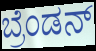
ಬ್ರೆಂಡನ್